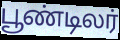
பூண்டிலர்